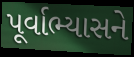
પૂર્વાભ્યાસને